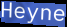
Heyne